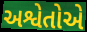
અશ્વેતોએ